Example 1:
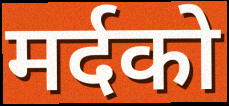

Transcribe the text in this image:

मर्दको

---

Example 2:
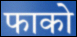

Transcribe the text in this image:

फाको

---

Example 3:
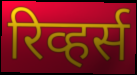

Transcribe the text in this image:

रिव्हर्स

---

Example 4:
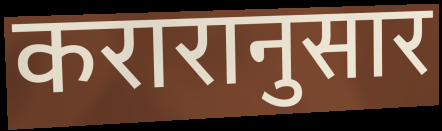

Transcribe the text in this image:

करारानुसार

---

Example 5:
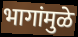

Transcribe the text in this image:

भागांमुळे